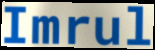
Imrul